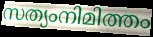
സത്യംനിമിത്തം